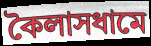
কৈলাসধামে